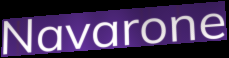
Navarone